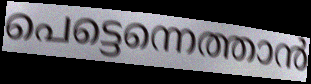
പെട്ടെന്നെത്താൻ